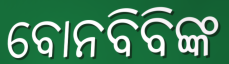
ବୋନବିବିଙ୍କ